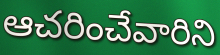
ఆచరించేవారిని